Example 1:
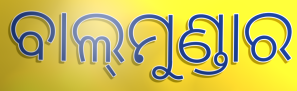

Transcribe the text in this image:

ବାଲ୍‍ମୁଣ୍ଡାର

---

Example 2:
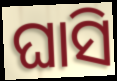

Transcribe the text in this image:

ଘାସି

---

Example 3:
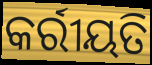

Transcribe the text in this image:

କର୍ରୀୟତି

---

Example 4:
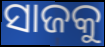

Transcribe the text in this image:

ସାଜକୁ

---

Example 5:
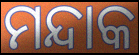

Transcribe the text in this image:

ମନ୍ଦାକ